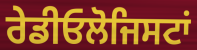
ਰੇਡੀਓਲੋਜਿਸਟਾਂ